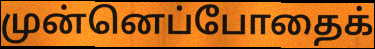
முன்னெப்போதைக்